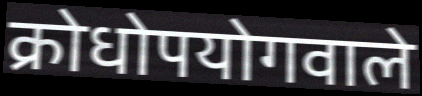
क्रोधोपयोगवाले